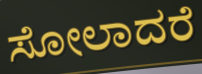
ಸೋಲಾದರೆ